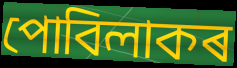
পোবিলাকৰ